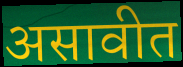
असावीत